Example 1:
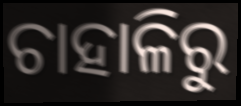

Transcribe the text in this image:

ଚାହାଳିରୁ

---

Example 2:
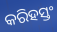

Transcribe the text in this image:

କରିହସ୍ତଂ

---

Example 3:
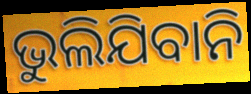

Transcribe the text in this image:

ଭୁଲିଯିବାନି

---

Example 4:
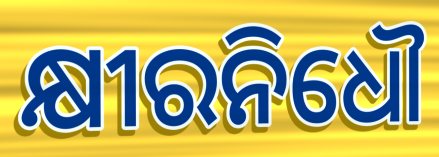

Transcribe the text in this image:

କ୍ଷୀରନିଧୌ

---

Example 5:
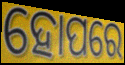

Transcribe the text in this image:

ହୋପରେ